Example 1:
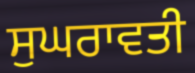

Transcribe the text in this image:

ਸੁਘਰਾਵਤੀ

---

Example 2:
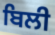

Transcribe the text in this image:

ਬਿਲੀ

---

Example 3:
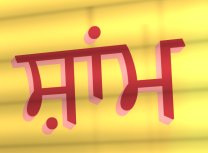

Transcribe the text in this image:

ਸ਼ਾਂਮ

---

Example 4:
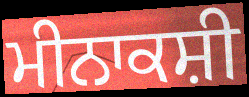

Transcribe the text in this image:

ਮੀਨਾਕਸ਼ੀ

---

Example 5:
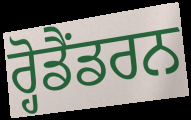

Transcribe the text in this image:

ਰ੍ਹੋਡੈਂਡਰਨ